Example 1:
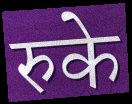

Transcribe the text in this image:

रुके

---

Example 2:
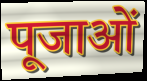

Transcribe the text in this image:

पूजाओं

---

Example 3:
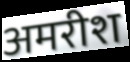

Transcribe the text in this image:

अमरीश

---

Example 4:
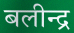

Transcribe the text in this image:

बलीन्द्र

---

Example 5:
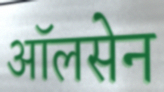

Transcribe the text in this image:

ऑलसेन